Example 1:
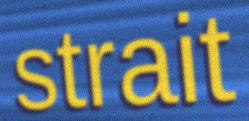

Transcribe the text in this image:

strait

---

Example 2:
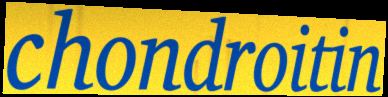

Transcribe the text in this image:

chondroitin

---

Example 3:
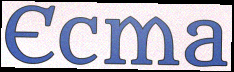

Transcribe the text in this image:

Ecma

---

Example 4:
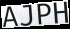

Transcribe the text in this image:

AJPH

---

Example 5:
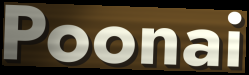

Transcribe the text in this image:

Poonai